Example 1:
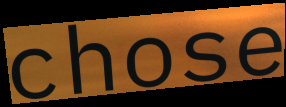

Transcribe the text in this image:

chose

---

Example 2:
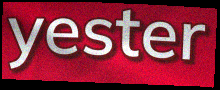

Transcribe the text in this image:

yester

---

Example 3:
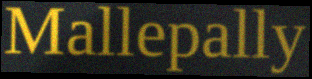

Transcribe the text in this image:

Mallepally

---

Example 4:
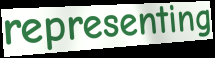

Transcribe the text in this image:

representing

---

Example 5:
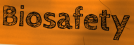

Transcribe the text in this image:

Biosafety